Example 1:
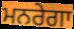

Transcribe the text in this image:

ਮਨਰੇਗਾ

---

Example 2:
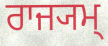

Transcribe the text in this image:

ਰਾਜ੍ਯਮ੍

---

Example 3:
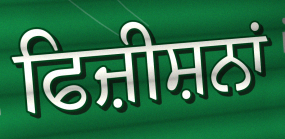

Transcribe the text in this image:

ਫਿਜ਼ੀਸ਼ਨਾਂ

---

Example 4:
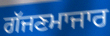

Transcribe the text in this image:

ਗੱਜਣਮਾਜਾਰ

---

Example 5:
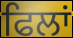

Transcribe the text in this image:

ਫਿਲਾਂ